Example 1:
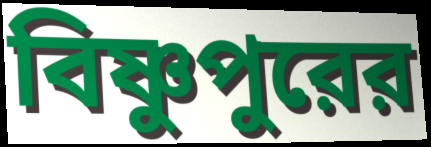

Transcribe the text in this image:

বিষ্ণুপুরের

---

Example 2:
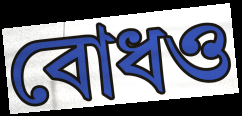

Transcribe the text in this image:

বোধও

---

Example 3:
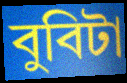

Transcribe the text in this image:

বুবিটা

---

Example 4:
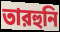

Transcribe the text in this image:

তারহুনি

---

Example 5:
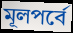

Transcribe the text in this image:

মূলপর্বে